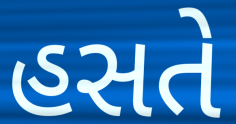
હસતે